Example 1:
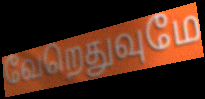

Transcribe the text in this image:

வேறெதுவுமே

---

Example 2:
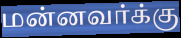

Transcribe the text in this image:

மன்னவர்க்கு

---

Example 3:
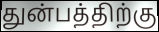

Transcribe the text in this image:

துன்பத்திற்கு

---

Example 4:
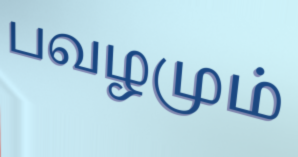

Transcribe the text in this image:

பவழமும்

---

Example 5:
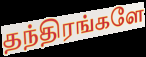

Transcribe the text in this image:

தந்திரங்களே